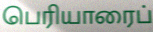
பெரியாரைப்